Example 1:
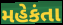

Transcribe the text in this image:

મહેકંતા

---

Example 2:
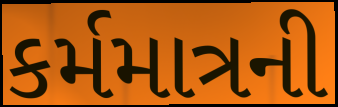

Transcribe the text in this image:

કર્મમાત્રની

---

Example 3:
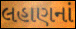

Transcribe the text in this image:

લહાણનાં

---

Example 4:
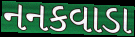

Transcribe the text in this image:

નનકવાડા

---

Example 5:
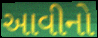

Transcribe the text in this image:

આવીનો